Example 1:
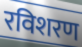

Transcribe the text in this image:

रविशरण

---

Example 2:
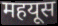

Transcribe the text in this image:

महयूस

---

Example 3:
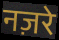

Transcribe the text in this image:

नज़रे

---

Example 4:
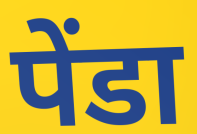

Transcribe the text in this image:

पेंडा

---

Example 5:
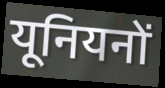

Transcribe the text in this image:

यूनियनों